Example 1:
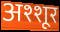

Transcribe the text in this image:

अश्शूर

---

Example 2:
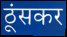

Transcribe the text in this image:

ठूंसकर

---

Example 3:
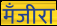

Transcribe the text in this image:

मँजीरा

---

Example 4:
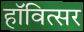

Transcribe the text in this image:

हॉवित्सर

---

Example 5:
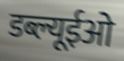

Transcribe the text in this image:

डब्ल्यूईओ